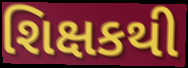
શિક્ષકથી